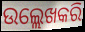
ଉଲ୍ଲେଖକରି